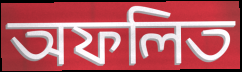
অফলিত